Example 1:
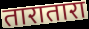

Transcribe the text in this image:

तारातारा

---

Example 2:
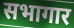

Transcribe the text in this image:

सभागार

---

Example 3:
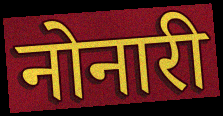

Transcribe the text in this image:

नोनारी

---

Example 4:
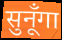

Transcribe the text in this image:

सुनूँगा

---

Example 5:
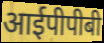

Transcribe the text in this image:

आईपीपीबी